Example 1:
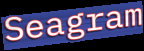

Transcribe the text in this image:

Seagram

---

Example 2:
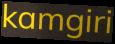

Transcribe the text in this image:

kamgiri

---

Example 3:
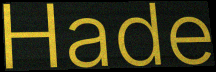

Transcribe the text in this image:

Hade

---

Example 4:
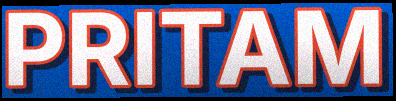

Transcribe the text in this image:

PRITAM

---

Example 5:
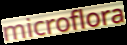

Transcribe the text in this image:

microflora